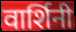
वार्शिनी